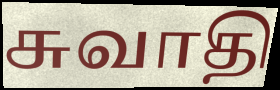
சுவாதி